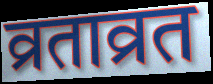
व्रताव्रत